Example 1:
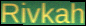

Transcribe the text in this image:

Rivkah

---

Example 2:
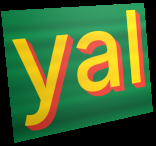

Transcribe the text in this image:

yal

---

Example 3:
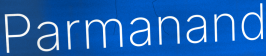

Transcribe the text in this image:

Parmanand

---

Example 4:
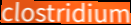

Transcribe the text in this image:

clostridium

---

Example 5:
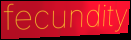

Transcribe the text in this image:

fecundity